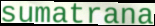
sumatrana